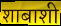
शाबाशी